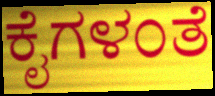
ಕೈಗಳಂತೆ